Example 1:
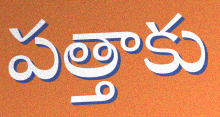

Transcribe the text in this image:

పత్తాకు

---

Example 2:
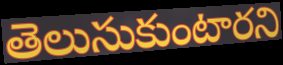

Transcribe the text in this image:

తెలుసుకుంటారని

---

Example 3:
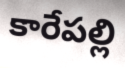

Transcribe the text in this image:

కారేపల్లి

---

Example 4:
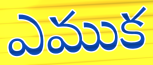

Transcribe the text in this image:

ఎముక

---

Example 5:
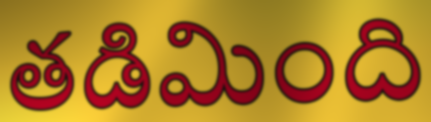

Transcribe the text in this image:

తడిమింది